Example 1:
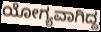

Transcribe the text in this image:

ಯೋಗ್ಯವಾಗಿದ್ದ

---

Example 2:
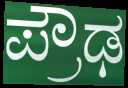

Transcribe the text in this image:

ಪ್ರೌಢ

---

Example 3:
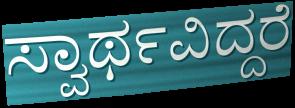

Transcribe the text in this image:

ಸ್ವಾರ್ಥವಿದ್ದರೆ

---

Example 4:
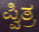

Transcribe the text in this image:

ಪ್ವಿತ್ರ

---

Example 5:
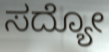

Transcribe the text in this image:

ಸದ್ಯೋ